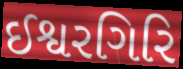
ઈશ્વરગિરિ